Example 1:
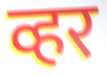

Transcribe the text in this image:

व्हर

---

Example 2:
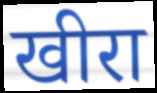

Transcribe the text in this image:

खीरा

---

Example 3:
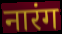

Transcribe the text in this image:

नारंग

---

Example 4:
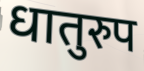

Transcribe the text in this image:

धातुरुप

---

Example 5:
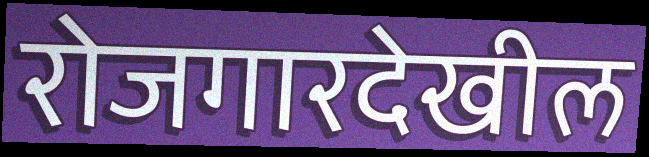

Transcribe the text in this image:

रोजगारदेखील